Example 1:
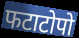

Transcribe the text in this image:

फटाटोपो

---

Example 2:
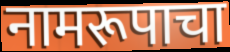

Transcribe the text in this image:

नामरूपाचा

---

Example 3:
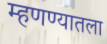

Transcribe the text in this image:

म्हणण्यातला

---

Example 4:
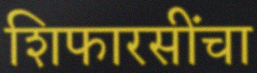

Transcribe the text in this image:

शिफारसींचा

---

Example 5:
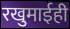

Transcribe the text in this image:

रखुमाईही